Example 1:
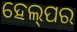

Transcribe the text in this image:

ହେଲ୍‌ପର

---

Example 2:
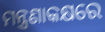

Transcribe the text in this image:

ମନ୍ତ୍ରଣାକକ୍ଷରେ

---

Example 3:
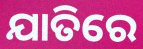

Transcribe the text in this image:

ଯାତିରେ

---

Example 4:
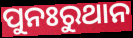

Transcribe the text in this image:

ପୁନଃରୁଥାନ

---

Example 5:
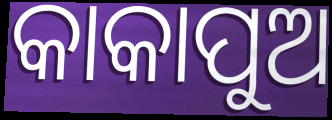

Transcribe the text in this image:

କାକାପୁଅ